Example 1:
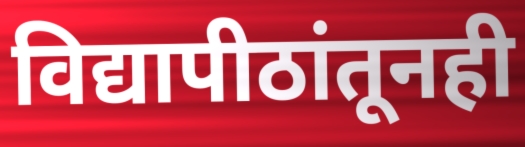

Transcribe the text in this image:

विद्यापीठांतूनही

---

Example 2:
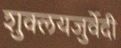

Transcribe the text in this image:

शुक्लयजुर्वेदी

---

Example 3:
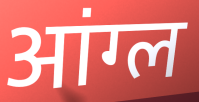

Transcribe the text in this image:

आंग्ल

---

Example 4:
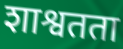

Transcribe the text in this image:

शाश्वतता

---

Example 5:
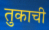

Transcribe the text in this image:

तुकाची